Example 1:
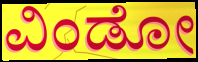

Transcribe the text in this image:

ವಿಂಡೋ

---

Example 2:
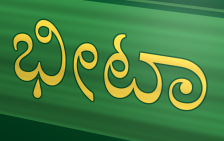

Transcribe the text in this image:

ಭೀಟಾ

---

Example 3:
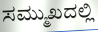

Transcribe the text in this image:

ಸಮ್ಮುಖದಲ್ಲಿ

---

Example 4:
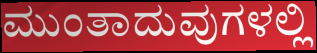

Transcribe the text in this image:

ಮುಂತಾದುವುಗಳಲ್ಲಿ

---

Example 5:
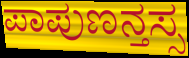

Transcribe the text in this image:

ಪಾಪುಣನ್ತಸ್ಸ